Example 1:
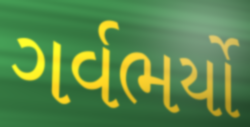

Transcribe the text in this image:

ગર્વભર્યો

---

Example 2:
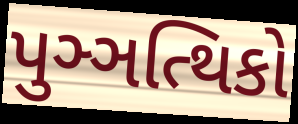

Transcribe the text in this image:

પુઞ્ઞત્થિકો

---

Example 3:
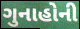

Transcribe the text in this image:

ગુનાહોની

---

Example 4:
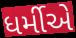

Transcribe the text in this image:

ધર્મીએ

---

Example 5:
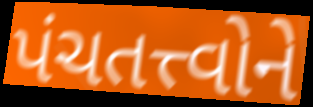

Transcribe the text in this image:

પંચતત્ત્વોને